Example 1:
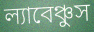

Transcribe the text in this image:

ল্যাবেঞ্চুস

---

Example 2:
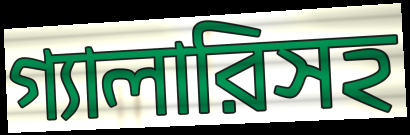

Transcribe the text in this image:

গ্যালারিসহ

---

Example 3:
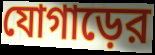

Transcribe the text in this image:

যোগাড়ের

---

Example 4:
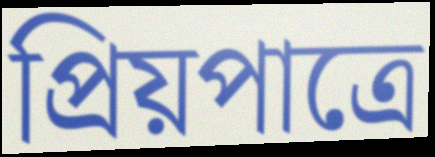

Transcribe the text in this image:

প্রিয়পাত্রে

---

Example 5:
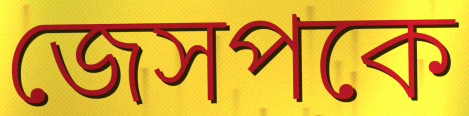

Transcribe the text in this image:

জেসপকে